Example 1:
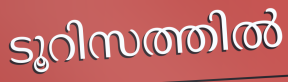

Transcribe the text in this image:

ടൂറിസത്തിൽ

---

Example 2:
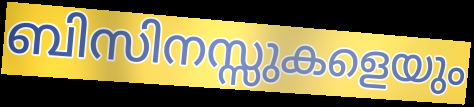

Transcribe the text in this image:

ബിസിനസ്സുകളെയും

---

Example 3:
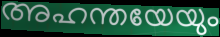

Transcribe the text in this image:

അഹന്തയേയും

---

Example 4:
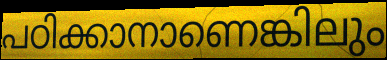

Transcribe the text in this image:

പഠിക്കാനാണെങ്കിലും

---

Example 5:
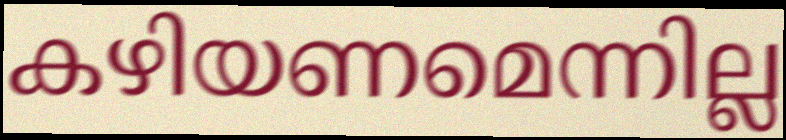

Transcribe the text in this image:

കഴിയണമെന്നില്ല